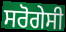
ਸਰੋਗੇਸੀ